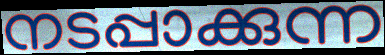
നടപ്പാക്കുന്ന